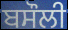
ਬਸੌਲੀ